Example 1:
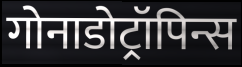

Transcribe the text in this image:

गोनाडोट्रॉपिन्स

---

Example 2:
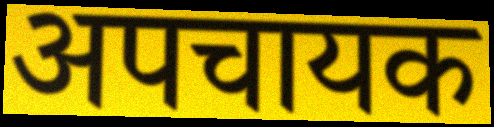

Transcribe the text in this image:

अपचायक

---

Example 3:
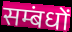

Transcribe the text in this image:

सम्बंधों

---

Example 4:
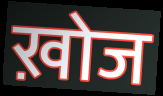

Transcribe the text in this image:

ख़ोज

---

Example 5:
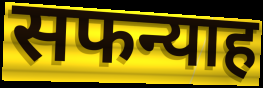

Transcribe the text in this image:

सफन्याह